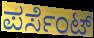
ಪರ್ಸೆಂಟ್